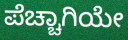
ಪೆಚ್ಚಾಗಿಯೇ